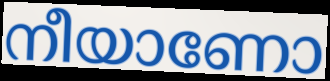
നീയാണോ